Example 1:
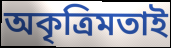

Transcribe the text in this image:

অকৃত্রিমতাই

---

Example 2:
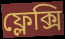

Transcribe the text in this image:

ফ্লেক্সি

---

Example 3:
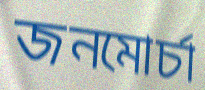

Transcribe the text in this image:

জনমোর্চা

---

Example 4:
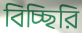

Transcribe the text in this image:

বিচ্ছিরি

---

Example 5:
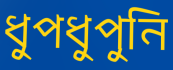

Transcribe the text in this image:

ধুপধুপুনি